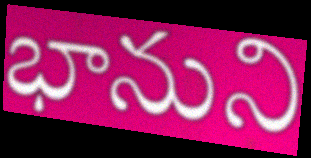
భానుని